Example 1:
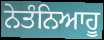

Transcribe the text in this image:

ਨੇਤੰਨਿਆਹੂ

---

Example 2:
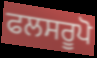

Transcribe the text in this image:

ਫਲਸਰੂਪੋ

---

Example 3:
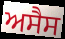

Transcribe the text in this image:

ਅਸੈਸ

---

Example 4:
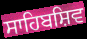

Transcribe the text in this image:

ਸਾਹਿਬਸ਼ਿਵ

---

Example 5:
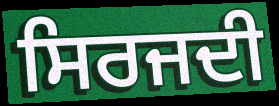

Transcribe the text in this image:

ਸਿਰਜਦੀ